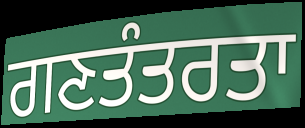
ਗਣਤੰਤਰਤਾ